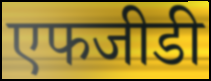
एफजीडी